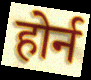
होर्न